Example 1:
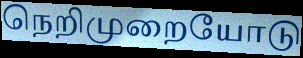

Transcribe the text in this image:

நெறிமுறையோடு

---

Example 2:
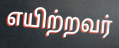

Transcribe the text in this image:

எயிற்றவர்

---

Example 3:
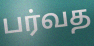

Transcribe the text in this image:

பர்வத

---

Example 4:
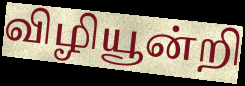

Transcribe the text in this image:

விழியூன்றி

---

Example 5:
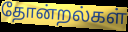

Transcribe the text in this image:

தோன்றல்கள்